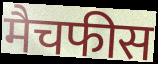
मैचफीस